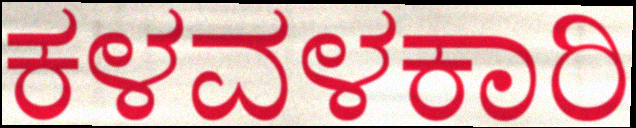
ಕಳವಳಕಾರಿ